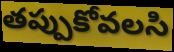
తప్పుకోవలసి